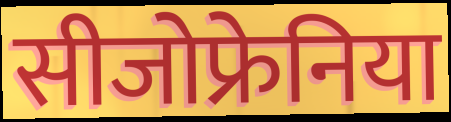
सीजोफ्रेनिया